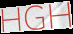
HGH